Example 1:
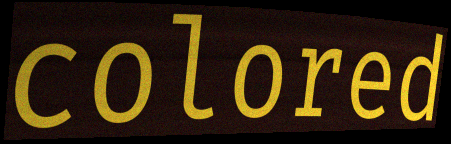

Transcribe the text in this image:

colored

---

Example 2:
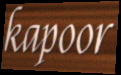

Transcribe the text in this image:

kapoor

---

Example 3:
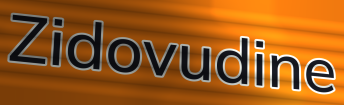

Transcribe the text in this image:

Zidovudine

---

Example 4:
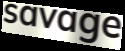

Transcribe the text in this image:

savage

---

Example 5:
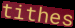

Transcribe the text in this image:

tithes